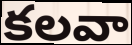
కలవా